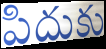
పిదుకు